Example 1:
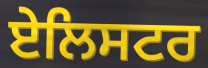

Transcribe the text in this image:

ਏਲਿਸਟਰ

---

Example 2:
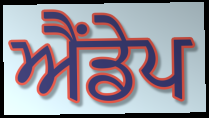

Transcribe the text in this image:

ਐਂਡੇਪ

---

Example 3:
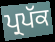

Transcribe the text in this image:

ਪ੍ਰਪੱਕ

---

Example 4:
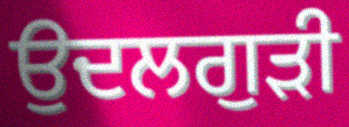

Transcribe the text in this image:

ਉਦਲਗੁੜੀ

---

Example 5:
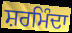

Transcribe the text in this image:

ਸ਼ਰਮਿੰਦਾ